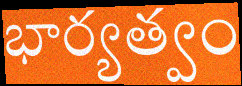
భార్యత్వం